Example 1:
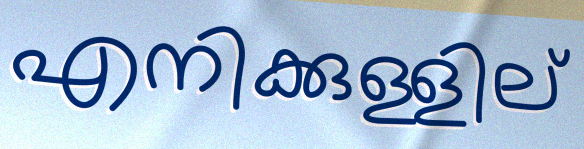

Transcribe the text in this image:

എനിക്കുള്ളില്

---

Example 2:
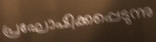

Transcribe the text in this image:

പ്രഘോഷിക്കപ്പെടുന്നു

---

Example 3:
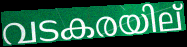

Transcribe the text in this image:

വടകരയില്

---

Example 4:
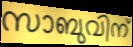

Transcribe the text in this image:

സാബുവിന്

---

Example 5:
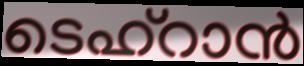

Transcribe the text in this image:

ടെഹ്റാൻ